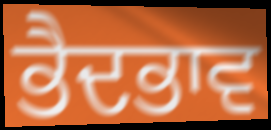
ਭੈਦਭਾਵ